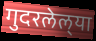
गुदरलेल्या